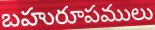
బహురూపములు